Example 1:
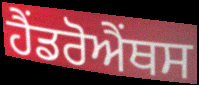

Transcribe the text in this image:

ਹੈਂਡਰੋਐਂਥਸ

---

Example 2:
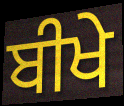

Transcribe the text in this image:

ਬੀਖੇ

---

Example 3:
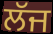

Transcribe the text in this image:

ਲੱਜ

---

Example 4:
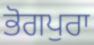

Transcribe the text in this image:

ਭੋਗਪੁਰਾ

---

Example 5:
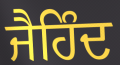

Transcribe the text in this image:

ਜੈਹਿੰਦ